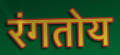
रंगतोय